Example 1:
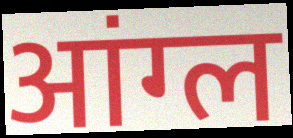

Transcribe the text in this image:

आंग्ल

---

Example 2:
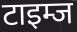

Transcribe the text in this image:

टाइम्ज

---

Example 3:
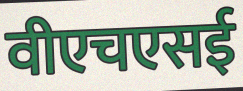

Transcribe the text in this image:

वीएचएसई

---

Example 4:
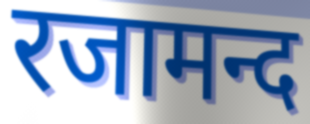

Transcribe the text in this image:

रजामन्द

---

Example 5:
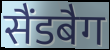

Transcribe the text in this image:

सैंडबैग